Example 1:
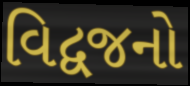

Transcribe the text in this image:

વિદ્વજનો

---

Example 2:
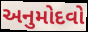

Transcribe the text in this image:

અનુમોદવો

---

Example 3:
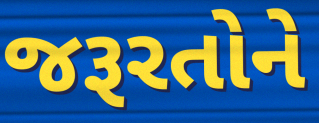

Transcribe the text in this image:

જરૂરતોને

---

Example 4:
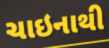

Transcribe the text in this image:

ચાઇનાથી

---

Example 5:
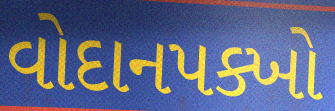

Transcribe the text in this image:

વોદાનપક્ખો